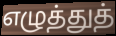
எழுத்துத்